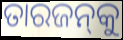
ତାରଜନ୍‌କୁ